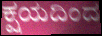
ಕ್ಷಯದಿಂದ